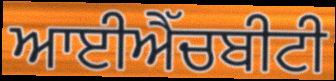
ਆਈਐੱਚਬੀਟੀ